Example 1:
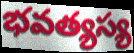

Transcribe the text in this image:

భవత్యస్య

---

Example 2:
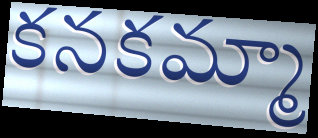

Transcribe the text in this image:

కనకమ్మా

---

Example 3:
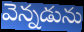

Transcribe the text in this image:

వెన్నడును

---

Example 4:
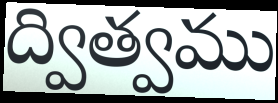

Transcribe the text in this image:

ద్విత్వము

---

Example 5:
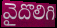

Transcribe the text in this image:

వైదొలిగి